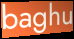
baghu